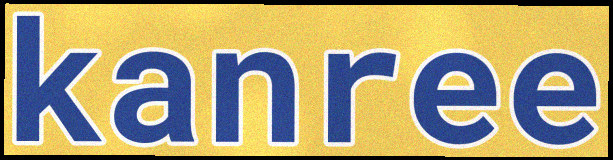
kanree